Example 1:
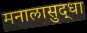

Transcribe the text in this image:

मनालासुद्धा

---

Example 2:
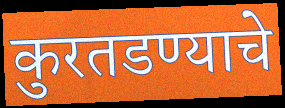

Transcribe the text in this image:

कुरतडण्याचे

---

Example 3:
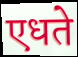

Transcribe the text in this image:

एधते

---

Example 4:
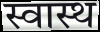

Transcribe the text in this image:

स्वास्थ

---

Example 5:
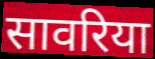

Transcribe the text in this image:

सावरिया